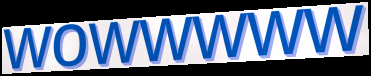
wowwwww